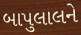
બાપુલાલને